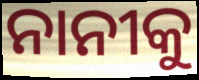
ନାନୀକୁ